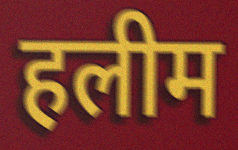
हलीम